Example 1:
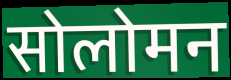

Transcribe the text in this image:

सोलोमन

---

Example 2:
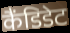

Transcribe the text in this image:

कैंडिडेट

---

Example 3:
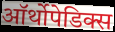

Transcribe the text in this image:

ऑर्थोपेडिक्स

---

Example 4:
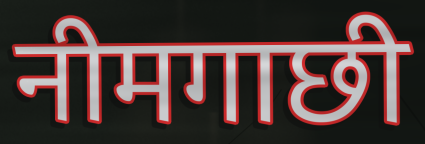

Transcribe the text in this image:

नीमगाछी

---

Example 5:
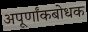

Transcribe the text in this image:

अपूर्णांकबोधक